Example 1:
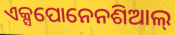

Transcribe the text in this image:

ଏକ୍ସପୋନେନଶିଆଲ୍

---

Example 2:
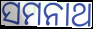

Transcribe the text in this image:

ସମନାଥ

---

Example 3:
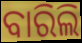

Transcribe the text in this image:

ବାରିଲି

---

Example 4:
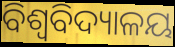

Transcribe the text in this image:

ବିଶ୍ଵବିଦ୍ୟାଳୟ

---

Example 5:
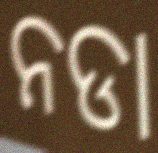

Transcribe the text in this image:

ନଡା